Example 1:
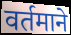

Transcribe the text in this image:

वर्तमाने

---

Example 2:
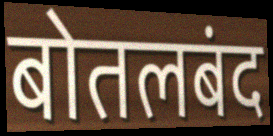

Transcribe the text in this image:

बोतलबंद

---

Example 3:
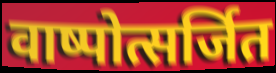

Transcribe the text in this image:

वाष्पोत्सर्जित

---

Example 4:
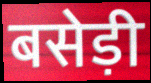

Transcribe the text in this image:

बसेड़ी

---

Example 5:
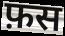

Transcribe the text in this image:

फ़स